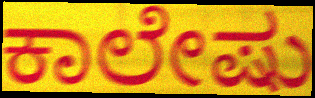
ಕಾಲೇಷು